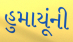
હુમાયૂંની